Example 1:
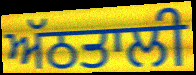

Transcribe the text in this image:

ਅੱਠਤਾਲੀ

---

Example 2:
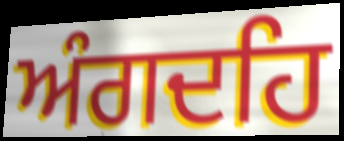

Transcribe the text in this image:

ਅੰਗਦਹਿ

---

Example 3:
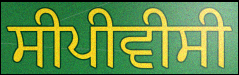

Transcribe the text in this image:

ਸੀਪੀਵੀਸੀ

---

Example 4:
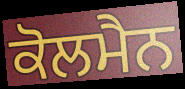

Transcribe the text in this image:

ਕੋਲਮੈਨ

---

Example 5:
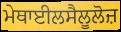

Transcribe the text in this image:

ਮੇਥਾਈਲਸੈਲੂਲੋਜ਼